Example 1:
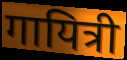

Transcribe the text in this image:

गायित्री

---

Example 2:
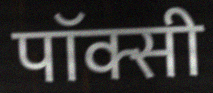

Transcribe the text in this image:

पॉक्सी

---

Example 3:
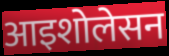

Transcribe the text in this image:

आइशोलेसन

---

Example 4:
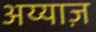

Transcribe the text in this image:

अय्याज़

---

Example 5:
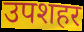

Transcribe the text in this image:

उपशहर